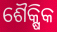
ଶୈକ୍ଷିକ